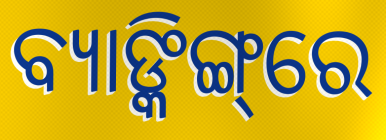
ବ୍ୟାଙ୍କିଙ୍ଗ୍‌ରେ